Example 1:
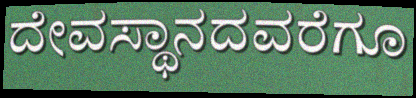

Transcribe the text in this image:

ದೇವಸ್ಥಾನದವರೆಗೂ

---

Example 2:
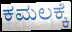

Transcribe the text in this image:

ಕಮಲಕ್ಕೆ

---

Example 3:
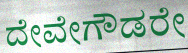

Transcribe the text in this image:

ದೇವೇಗೌಡರೇ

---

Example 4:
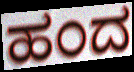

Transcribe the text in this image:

ಹಂದ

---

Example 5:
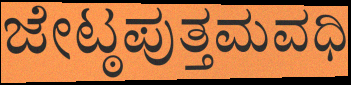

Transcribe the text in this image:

ಜೇಟ್ಠಪುತ್ತಮವಧಿ